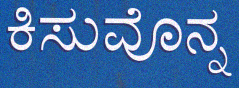
ಕಿಸುವೊನ್ನ